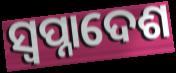
ସ୍ଵପ୍ନାଦେଶ